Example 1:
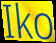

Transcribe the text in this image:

Iko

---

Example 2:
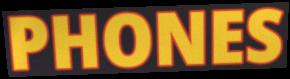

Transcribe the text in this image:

PHONES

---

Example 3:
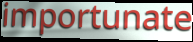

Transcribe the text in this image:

importunate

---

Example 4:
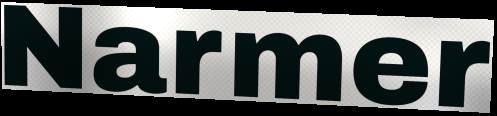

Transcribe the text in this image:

Narmer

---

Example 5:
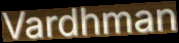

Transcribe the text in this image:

Vardhman